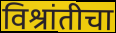
विश्रांतीचा